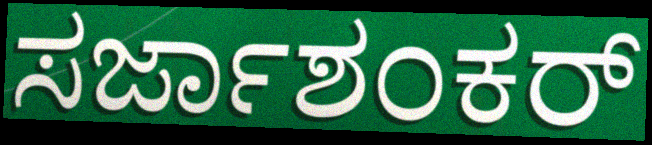
ಸರ್ಜಾಶಂಕರ್